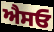
ਐਸਓ